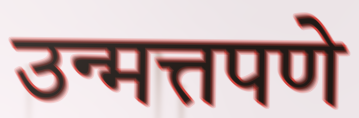
उन्मत्तपणे